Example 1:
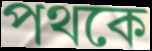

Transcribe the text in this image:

পথকে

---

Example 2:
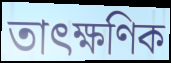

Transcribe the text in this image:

তাৎক্ষণিক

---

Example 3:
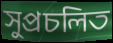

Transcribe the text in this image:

সুপ্রচলিত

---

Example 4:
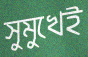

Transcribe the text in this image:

সুমুখেই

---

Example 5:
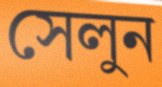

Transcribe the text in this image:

সেলুন